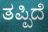
ತಪ್ಪಿದೆ